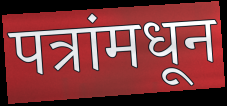
पत्रांमधून